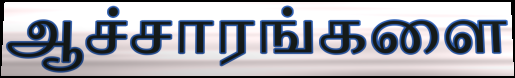
ஆச்சாரங்களை